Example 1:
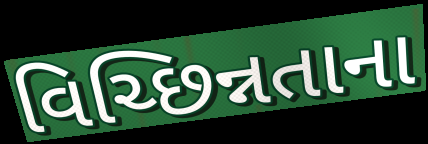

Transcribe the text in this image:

વિચ્છિન્નતાના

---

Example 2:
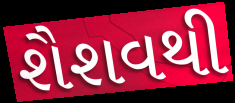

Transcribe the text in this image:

શૈશવથી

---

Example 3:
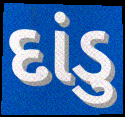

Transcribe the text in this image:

દાંડુ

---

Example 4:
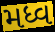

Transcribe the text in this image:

મધ્વ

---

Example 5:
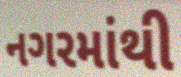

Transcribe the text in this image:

નગરમાંથી